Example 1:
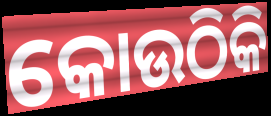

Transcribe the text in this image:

କୋଉଠିକି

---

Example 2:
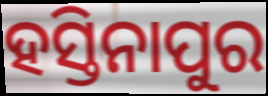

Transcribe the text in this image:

ହସ୍ତିନାପୁର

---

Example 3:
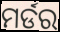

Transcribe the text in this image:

ମର୍ଡର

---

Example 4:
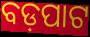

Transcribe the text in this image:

ବଡ଼ପାଟ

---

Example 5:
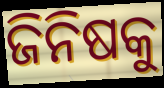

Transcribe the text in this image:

ଜିନିଷକୁ